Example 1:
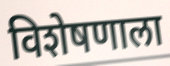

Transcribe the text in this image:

विशेषणाला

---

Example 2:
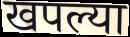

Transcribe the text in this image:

खपल्या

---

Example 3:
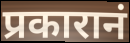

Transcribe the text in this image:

प्रकारानं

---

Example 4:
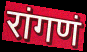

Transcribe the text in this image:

रांगणं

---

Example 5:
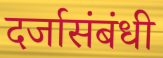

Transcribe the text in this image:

दर्जासंबंधी